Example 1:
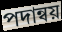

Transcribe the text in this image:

পদান্বয়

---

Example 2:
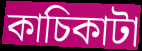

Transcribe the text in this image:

কাচিকাটা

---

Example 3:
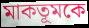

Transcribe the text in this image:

মাকতূমকে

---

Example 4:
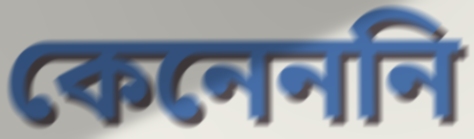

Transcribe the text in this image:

কেনেননি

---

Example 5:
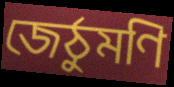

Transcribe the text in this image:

জেঠুমণি